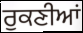
ਰੁਕਣੀਆਂ